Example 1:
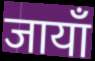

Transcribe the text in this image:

जायाँ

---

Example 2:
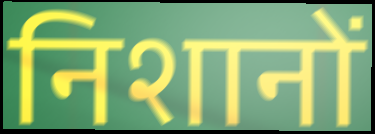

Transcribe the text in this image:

निशानों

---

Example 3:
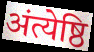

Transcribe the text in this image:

अंत्येष्ठि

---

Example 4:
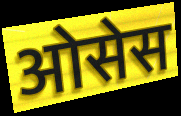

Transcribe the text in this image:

ओसेस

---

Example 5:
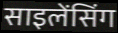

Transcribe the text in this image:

साइलेंसिंग